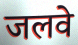
जलवे